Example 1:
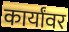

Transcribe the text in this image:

कार्यांवर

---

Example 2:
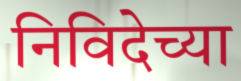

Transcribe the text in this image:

निविदेच्या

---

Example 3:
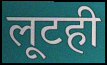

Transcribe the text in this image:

लूटही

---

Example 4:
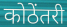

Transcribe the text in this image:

कोठेंतरी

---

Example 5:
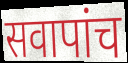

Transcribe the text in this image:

सवापांच